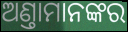
ଅଣ୍ତାମାନଙ୍କର